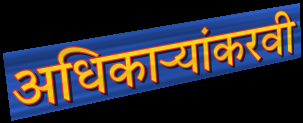
अधिकाऱ्यांकरवी